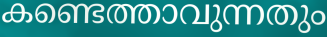
കണ്ടെത്താവുന്നതും